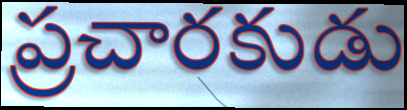
ప్రచారకుడు